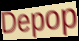
Depop